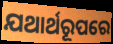
ଯଥାର୍ଥରୂପରେ